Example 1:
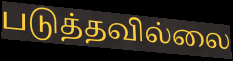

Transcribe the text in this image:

படுத்தவில்லை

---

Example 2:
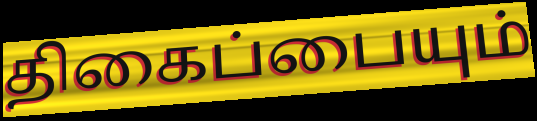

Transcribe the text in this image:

திகைப்பையும்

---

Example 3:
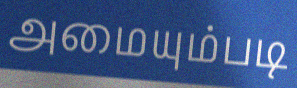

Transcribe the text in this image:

அமையும்படி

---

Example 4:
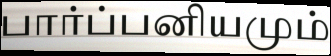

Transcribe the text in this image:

பார்ப்பனியமும்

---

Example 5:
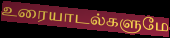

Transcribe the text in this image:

உரையாடல்களுமே